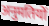
अनुमतियों